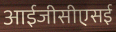
आईजीसीएसई